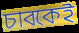
চাবকেই